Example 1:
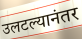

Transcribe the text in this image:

उलटल्यानंतर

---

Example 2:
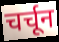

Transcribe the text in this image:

चर्चून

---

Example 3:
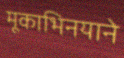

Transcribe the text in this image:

मूकाभिनयाने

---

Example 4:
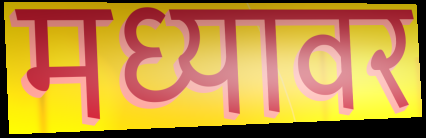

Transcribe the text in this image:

मध्यावर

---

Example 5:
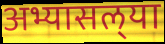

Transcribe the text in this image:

अभ्यासल्या